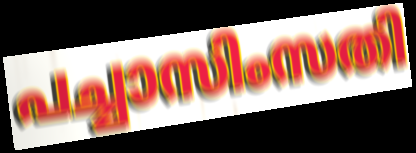
പച്ചാസിംസതി